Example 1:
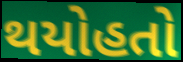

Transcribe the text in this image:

થયોહતો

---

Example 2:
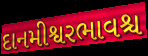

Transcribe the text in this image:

દાનમીશ્વરભાવશ્ચ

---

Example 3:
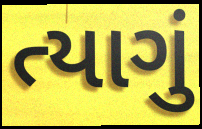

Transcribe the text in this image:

ત્યાગું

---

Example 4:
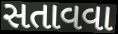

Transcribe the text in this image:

સતાવવા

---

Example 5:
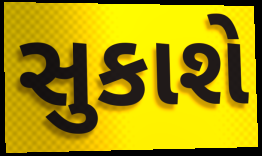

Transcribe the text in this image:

સુકાશે